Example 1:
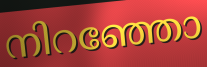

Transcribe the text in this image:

നിറഞ്ഞോ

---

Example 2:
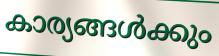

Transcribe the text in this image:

കാര്യങ്ങൾക്കും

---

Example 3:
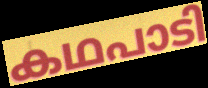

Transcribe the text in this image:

കഥപാടി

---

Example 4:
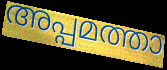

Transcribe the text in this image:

അപ്പമത്താ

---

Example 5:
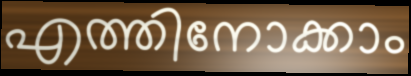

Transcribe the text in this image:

എത്തിനോക്കാം